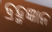
ବ୍ରହ୍ମଜ୍ଞାନ